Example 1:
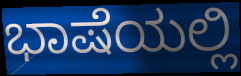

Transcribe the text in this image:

ಭಾಷೆಯಲ್ಲಿ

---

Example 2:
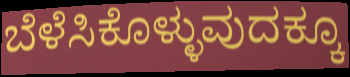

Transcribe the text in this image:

ಬೆಳೆಸಿಕೊಳ್ಳುವುದಕ್ಕೂ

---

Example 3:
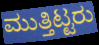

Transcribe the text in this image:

ಮುತ್ತಿಟ್ಟರು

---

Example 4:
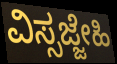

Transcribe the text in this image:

ವಿಸ್ಸಜ್ಜೇಹಿ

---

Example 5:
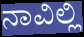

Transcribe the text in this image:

ನಾವಿಲ್ಲಿ